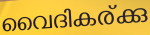
വൈദികര്ക്കു